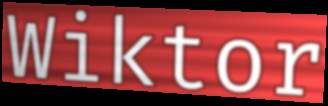
Wiktor